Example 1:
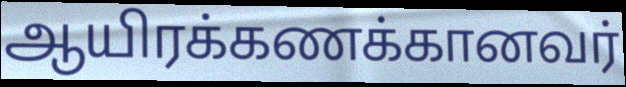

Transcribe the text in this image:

ஆயிரக்கணக்கானவர்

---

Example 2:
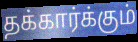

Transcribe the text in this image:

தக்கார்க்கும்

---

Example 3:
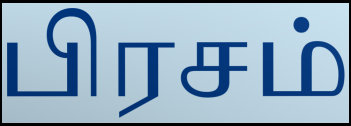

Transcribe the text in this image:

பிரசம்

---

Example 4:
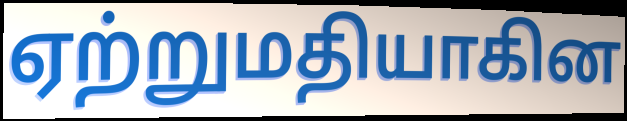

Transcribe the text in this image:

ஏற்றுமதியாகின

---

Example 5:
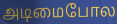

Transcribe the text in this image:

அடிமைபோல